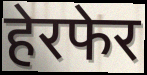
हेरफेर